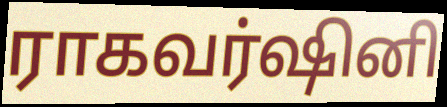
ராகவர்ஷினி